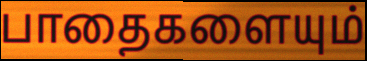
பாதைகளையும்